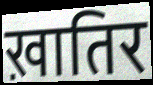
ख़ातिर